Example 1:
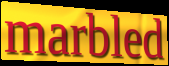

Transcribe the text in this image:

marbled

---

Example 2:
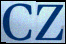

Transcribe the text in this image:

CZ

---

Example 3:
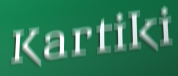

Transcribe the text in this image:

Kartiki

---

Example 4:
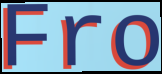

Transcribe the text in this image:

Fro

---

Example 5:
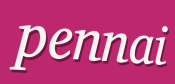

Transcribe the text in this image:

pennai